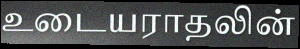
உடையராதலின்